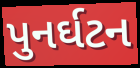
પુનર્ઘટન